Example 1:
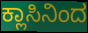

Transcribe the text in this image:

ಕ್ಲಾಸಿನಿಂದ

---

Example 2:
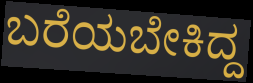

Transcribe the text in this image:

ಬರೆಯಬೇಕಿದ್ದ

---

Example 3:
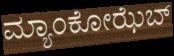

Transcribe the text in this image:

ಮ್ಯಾಂಕೋಝೆಬ್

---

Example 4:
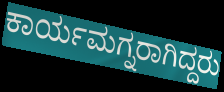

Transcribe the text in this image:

ಕಾರ್ಯಮಗ್ನರಾಗಿದ್ದರು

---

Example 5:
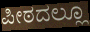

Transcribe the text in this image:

ಪೀಠದಲ್ಲೂ